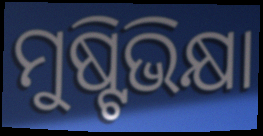
ମୁଷ୍ଟିଭିକ୍ଷା